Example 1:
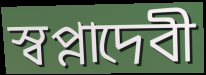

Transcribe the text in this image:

স্বপ্নাদেবী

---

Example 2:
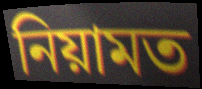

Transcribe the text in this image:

নিয়ামত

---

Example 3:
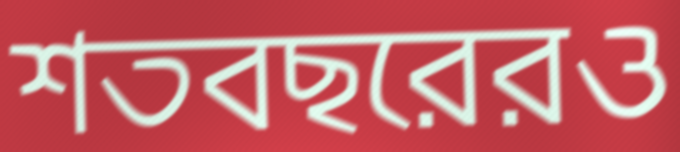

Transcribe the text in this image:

শতবছরেরও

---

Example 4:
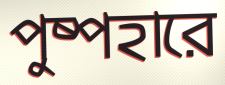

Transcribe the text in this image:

পুষ্পহারে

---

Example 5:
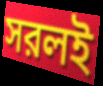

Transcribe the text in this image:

সরলই